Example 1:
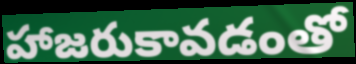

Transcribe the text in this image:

హాజరుకావడంతో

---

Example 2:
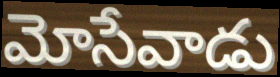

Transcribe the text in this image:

మోసేవాడు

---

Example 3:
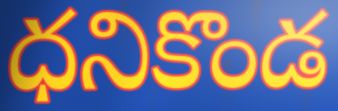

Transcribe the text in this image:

ధనికొండ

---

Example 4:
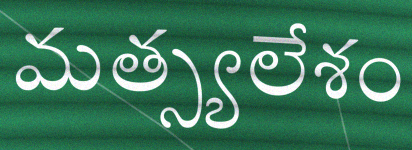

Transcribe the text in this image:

మత్స్యలేశం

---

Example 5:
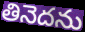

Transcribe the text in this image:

తినెదను